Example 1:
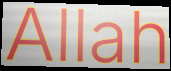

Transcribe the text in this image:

Allah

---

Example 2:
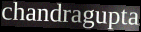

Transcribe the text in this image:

chandragupta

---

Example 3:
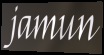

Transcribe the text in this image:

jamun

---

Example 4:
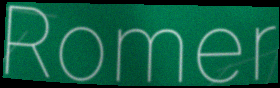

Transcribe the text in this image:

Romer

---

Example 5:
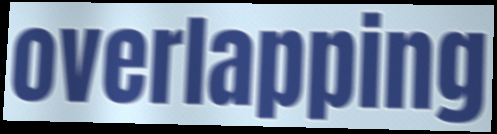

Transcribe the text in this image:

overlapping